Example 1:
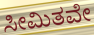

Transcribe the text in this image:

ಸೀಮಿತವೇ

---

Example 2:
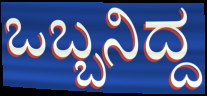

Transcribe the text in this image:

ಒಬ್ಬನಿದ್ದ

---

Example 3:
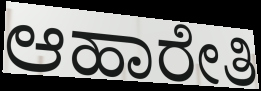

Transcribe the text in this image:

ಆಹಾರೇತಿ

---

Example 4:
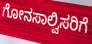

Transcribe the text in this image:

ಗೋನಸಾಲ್ವಿಸರಿಗೆ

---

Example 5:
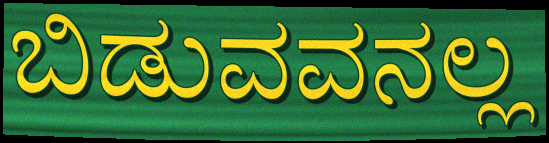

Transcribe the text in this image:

ಬಿಡುವವನಲ್ಲ